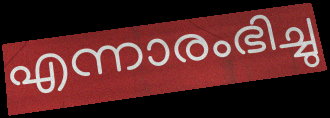
എന്നാരംഭിച്ചു